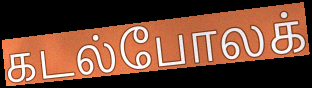
கடல்போலக்